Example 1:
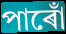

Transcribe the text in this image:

পাৰোঁ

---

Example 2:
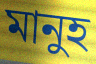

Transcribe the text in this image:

মানুহ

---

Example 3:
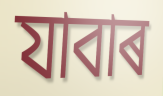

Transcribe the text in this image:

যাবাৰ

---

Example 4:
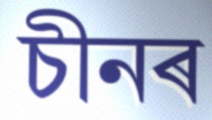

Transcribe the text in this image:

চীনৰ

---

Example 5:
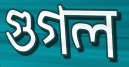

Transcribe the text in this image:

গুগল